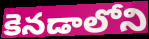
కెనడాలోని